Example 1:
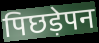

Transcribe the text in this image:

पिछड़ेपन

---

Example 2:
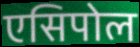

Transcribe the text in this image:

एसिपोल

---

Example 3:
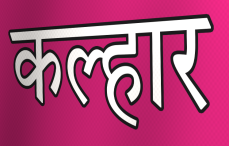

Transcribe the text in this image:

कल्हार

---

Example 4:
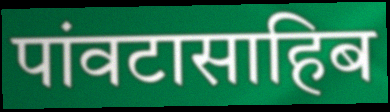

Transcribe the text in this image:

पांवटासाहिब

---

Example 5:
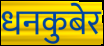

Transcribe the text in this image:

धनकुबेर